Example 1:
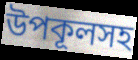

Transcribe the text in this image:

উপকূলসহ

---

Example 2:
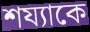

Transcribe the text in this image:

শয্যাকে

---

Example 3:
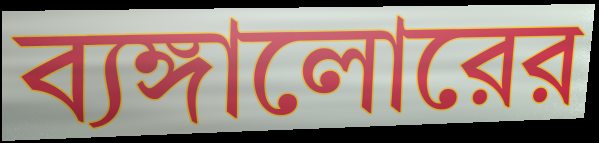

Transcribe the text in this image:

ব্যঙ্গালোরের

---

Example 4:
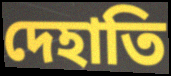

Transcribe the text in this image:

দেহাতি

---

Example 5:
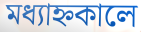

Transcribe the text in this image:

মধ্যাহ্নকালে